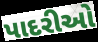
પાદરીઓ